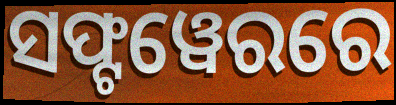
ସଫ୍ଟୱେରରେ